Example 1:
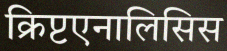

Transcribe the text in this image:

क्रिप्टएनालिसिस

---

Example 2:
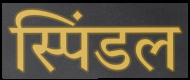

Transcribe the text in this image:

स्पिंडल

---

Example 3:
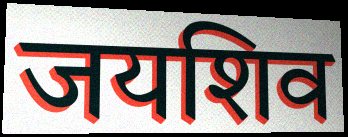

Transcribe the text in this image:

जयशिव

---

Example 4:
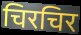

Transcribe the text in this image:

चिरचिर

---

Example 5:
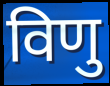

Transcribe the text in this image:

विणु